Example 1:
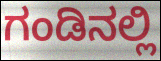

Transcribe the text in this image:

ಗಂಡಿನಲ್ಲಿ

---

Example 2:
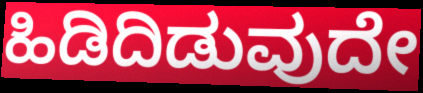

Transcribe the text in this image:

ಹಿಡಿದಿಡುವುದೇ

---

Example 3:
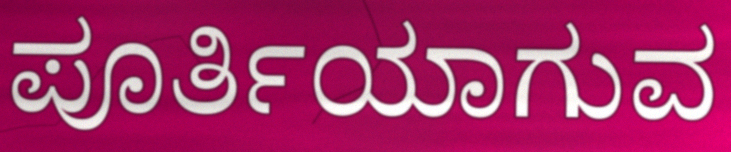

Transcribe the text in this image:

ಪೂರ್ತಿಯಾಗುವ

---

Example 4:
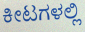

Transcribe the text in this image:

ಕೀಟಗಳಲ್ಲಿ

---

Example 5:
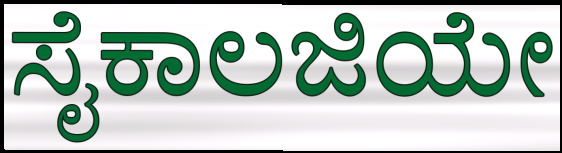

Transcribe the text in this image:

ಸೈಕಾಲಜಿಯೇ